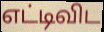
எட்டிவிட